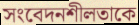
সংবেদনশীলতাকে